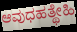
ಆವುಧಹತ್ಥೇಹಿ